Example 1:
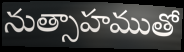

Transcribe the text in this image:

నుత్సాహముతో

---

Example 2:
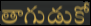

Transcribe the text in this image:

తాగుడుకో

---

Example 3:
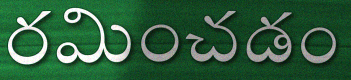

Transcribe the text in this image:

రమించడం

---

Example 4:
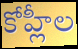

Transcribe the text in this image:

కోహ్లీల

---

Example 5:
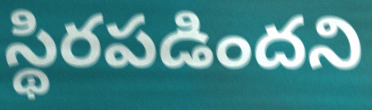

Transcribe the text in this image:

స్థిరపడిందని